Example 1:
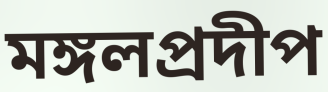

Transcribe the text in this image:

মঙ্গলপ্রদীপ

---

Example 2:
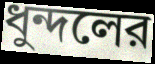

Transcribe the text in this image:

ধুন্দলের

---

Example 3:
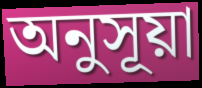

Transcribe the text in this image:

অনুসূয়া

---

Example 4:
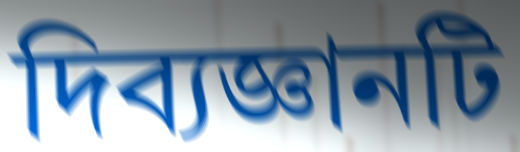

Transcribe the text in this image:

দিব্যজ্ঞানটি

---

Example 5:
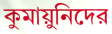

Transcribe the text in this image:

কুমায়ুনিদের